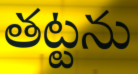
తట్టను